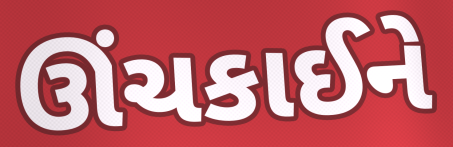
ઊંચકાઈને